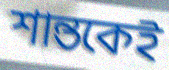
শান্তকেই